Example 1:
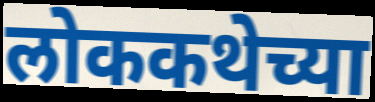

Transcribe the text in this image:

लोककथेच्या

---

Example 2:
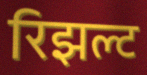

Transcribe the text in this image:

रिझल्ट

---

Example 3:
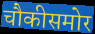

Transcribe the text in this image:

चौकीसमोर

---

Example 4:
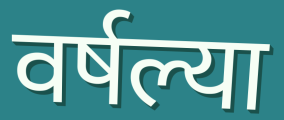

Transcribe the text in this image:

वर्षल्या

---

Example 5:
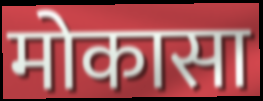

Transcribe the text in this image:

मोकासा